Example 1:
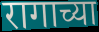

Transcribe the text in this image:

रागाच्या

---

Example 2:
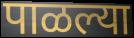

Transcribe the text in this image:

पाळल्या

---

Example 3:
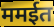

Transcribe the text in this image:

ममईत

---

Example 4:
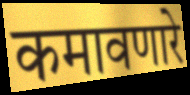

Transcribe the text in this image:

कमावणारे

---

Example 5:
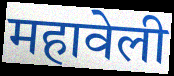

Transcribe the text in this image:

महावेली